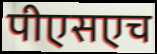
पीएसएच